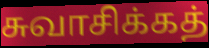
சுவாசிக்கத்